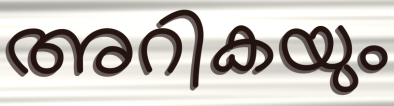
അറികയും